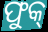
ଫୁକ୍